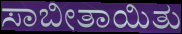
ಸಾಬೀತಾಯಿತು